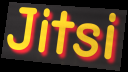
Jitsi